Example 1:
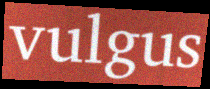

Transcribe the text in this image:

vulgus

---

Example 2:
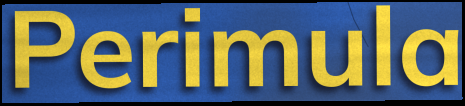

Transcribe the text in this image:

Perimula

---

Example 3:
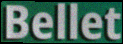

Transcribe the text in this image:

Bellet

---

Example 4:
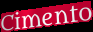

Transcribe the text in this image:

Cimento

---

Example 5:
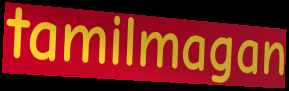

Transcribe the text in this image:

tamilmagan